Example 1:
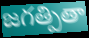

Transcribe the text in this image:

జగత్పితా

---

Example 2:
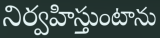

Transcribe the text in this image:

నిర్వహిస్తుంటాను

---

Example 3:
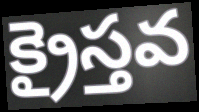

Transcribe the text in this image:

క్రైస్తవ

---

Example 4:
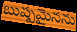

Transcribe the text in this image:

బుష్పమైనను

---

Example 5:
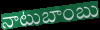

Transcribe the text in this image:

నాటుబాంబు